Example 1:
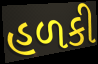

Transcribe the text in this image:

હળકી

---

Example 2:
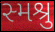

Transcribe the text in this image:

સ્મશ્રુ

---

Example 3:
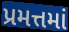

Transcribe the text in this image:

પ્રમત્તમાં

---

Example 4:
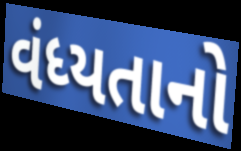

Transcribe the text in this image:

વંધ્યતાનો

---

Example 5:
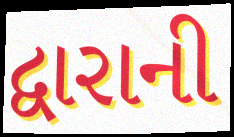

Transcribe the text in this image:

દ્વારાની